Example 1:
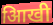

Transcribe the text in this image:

आिखी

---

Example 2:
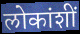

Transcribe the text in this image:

लोकांशीं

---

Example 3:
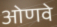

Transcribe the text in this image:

ओणवे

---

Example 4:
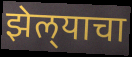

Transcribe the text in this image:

झेल्याचा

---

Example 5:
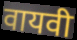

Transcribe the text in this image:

वायवी